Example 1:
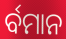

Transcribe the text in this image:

ର୍ବମାନ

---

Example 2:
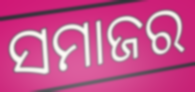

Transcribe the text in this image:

ସମାଜର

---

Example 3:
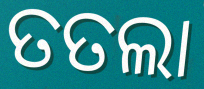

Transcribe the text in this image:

ତତଲା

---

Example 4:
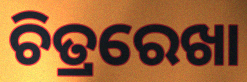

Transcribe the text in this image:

ଚିତ୍ରରେଖା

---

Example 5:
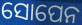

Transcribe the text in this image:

ସୋପେନ